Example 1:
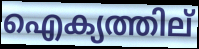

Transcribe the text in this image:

ഐക്യത്തില്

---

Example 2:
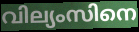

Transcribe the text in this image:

വില്യംസിനെ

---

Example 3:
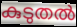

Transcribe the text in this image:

കുടുതൽ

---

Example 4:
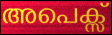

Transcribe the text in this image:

അപെക്സ്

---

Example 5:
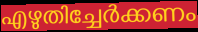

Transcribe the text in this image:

എഴുതിച്ചേർക്കണം